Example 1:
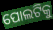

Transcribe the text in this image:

ପୋଲଟିକୁ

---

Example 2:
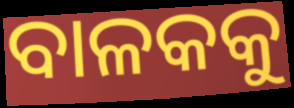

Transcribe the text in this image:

ବାଳକକୁ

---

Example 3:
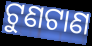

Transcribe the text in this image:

ଟୁଣଟାଣ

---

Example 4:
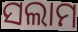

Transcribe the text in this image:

ସଲାମ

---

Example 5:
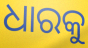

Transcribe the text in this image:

ଧାରକୁ